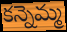
కన్నెమ్మ